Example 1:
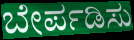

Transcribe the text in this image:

ಬೇರ್ಪಡಿಸು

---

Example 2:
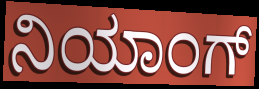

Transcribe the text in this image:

ನಿಯಾಂಗ್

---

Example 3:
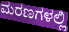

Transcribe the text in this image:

ಮರಣಗಳಲ್ಲಿ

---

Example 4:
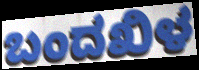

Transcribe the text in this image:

ಬಂದಖಿಳ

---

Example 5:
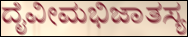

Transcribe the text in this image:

ದೈವೀಮಭಿಜಾತಸ್ಯ